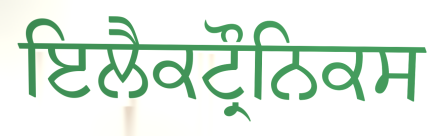
ਇਲੈਕਟ੍ਰੌਨਿਕਸ